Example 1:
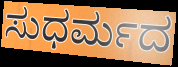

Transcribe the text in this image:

ಸುಧರ್ಮದ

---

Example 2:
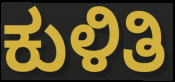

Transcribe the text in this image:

ಕುಳಿತಿ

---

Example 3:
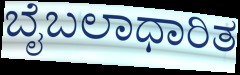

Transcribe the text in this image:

ಬೈಬಲಾಧಾರಿತ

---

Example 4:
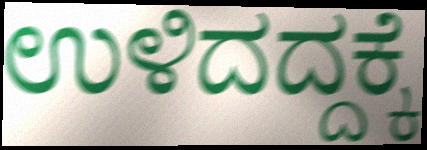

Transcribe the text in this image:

ಉಳಿದದ್ದಕ್ಕೆ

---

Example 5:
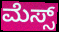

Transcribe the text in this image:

ಮೆಸ್ಸ್